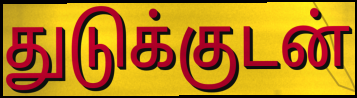
துடுக்குடன்